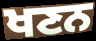
ਖਣਨ